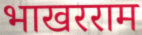
भाखरराम